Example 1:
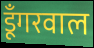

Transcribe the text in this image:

डूँगरवाल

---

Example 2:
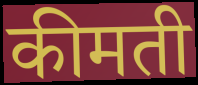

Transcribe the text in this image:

कीमती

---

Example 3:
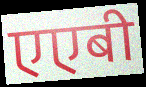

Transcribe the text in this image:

एएबी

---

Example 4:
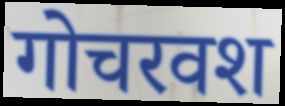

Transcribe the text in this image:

गोचरवश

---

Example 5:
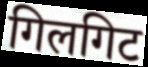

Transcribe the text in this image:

गिलगिट